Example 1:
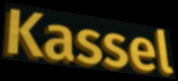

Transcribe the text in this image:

Kassel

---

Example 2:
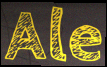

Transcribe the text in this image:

Ale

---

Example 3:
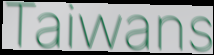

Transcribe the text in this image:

Taiwans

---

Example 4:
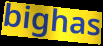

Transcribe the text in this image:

bighas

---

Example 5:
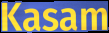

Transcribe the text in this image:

Kasam